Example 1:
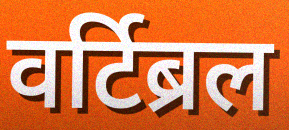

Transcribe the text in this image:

वर्टिब्रल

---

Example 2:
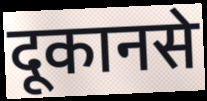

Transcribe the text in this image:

दूकानसे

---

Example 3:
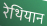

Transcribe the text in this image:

रेथियान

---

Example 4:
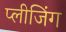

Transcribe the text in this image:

प्लीजिंग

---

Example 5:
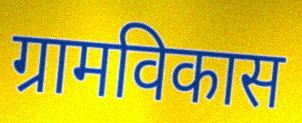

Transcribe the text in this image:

ग्रामविकास